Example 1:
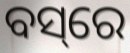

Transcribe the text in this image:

ବସ୍‌ରେ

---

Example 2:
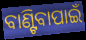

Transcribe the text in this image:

ବାଣ୍ଟିବାପାଇଁ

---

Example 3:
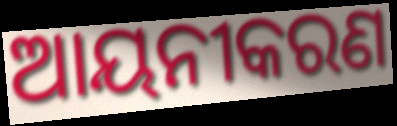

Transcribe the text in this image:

ଆୟନୀକରଣ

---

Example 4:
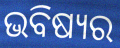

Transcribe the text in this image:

ଭବିଷ୍ୟର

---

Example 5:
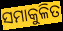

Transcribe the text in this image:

ସମାକୁଳିତ